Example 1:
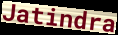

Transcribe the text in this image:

Jatindra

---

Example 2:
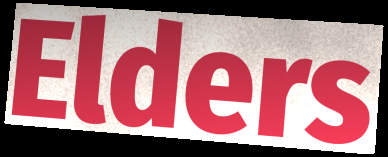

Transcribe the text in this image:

Elders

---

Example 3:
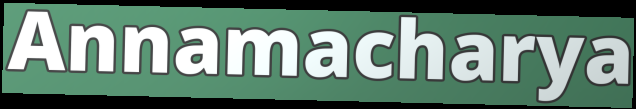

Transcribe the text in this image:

Annamacharya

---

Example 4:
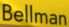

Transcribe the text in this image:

Bellman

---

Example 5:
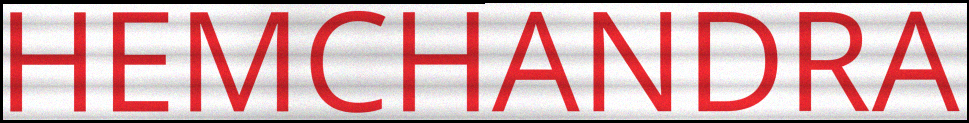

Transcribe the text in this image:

HEMCHANDRA